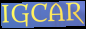
IGCAR